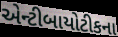
એન્ટીબાયોટીકના